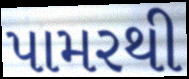
પામરથી